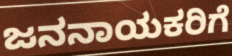
ಜನನಾಯಕರಿಗೆ